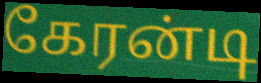
கேரன்டி